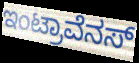
ಇಂಟ್ರಾವೆನಸ್